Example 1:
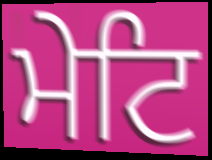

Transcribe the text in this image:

ਮੇਟਿ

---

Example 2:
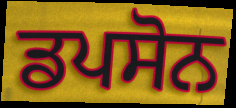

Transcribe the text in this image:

ਡਪਸੋਨ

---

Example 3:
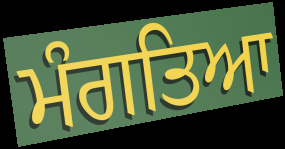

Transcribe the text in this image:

ਮੰਗਤਿਆ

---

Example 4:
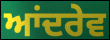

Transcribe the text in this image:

ਆਂਦਰੇਵ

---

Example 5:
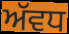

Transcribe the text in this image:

ਅੱਵਧ